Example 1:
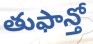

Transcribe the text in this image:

తుఫాన్తో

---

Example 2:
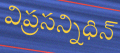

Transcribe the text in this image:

విప్రసన్నిధిన్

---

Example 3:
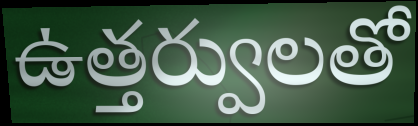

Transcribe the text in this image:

ఉత్తర్వులతో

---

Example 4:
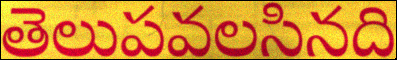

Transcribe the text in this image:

తెలుపవలసినది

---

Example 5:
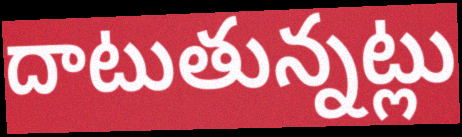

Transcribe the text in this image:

దాటుతున్నట్లు